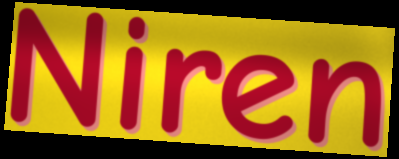
Niren